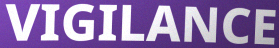
VIGILANCE